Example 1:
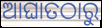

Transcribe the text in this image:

ଆଘାତଠାରୁ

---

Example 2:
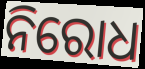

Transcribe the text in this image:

ନିରୋଧ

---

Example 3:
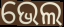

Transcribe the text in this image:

ଭେଲ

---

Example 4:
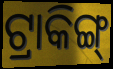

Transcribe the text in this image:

ଟ୍ରାକିଙ୍ଗ୍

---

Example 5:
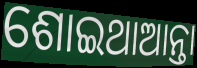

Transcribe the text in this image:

ଶୋଇଥାଆନ୍ତା